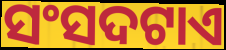
ସଂସଦଟାଏ